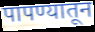
पापण्यातून